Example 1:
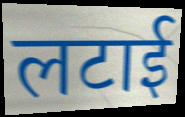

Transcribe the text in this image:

लटाई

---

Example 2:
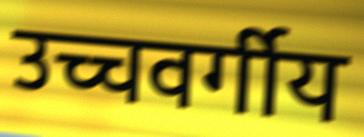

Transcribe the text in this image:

उच्चवर्गीय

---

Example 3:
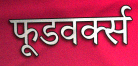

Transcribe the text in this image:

फूडवर्क्स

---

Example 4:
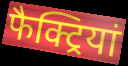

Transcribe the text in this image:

फैक्ट्रियां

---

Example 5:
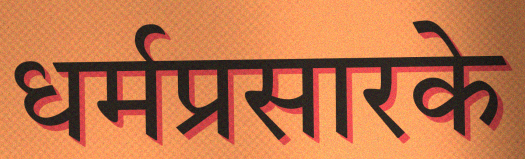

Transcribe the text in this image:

धर्मप्रसारके